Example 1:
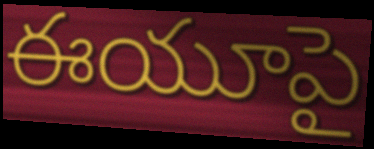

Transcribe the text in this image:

ఈయూపై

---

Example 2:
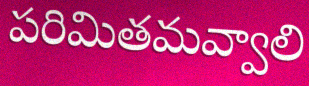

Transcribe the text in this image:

పరిమితమవ్వాలి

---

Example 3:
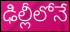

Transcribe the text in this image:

ఢిల్లీలోనే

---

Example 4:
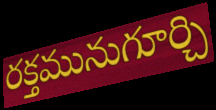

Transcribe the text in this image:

రక్తమునుగూర్చి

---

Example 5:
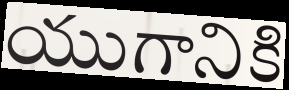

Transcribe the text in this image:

యుగానికి